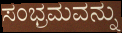
ಸಂಭ್ರಮವನ್ನು